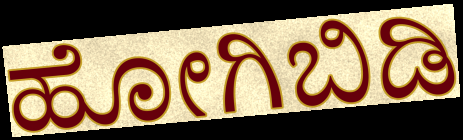
ಹೋಗಿಬಿಡಿ